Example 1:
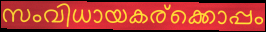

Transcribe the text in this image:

സംവിധായകര്ക്കൊപ്പം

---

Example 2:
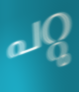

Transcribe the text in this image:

പറ്റു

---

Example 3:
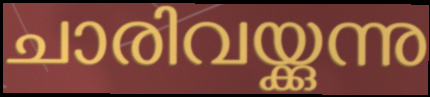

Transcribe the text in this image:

ചാരിവയ്ക്കുന്നു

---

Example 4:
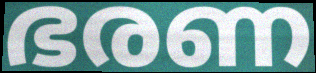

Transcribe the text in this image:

ഭരണ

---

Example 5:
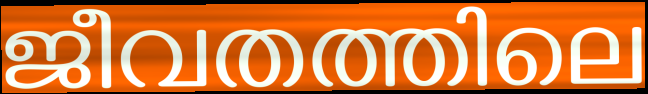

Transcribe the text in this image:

ജീവതത്തിലെ